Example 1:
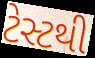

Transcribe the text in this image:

ટેસ્ટથી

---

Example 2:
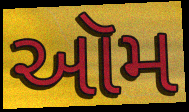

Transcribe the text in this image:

ઑમ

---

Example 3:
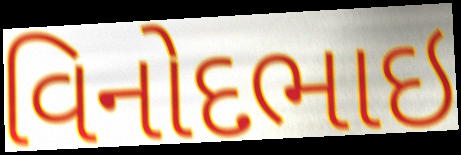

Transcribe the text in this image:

વિનોદભાઇ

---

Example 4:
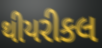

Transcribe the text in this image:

થીયરીકલ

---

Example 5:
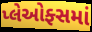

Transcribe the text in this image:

પ્લેઓફ્સમાં